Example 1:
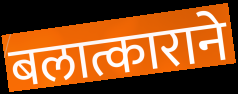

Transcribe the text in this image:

बलात्काराने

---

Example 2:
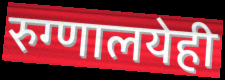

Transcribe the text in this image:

रुग्णालयेही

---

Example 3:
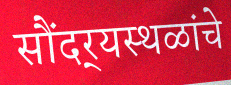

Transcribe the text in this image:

सौंदर्यस्थळांचे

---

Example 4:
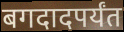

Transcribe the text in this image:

बगदादपर्यंत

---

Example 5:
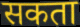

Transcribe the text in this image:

सकता